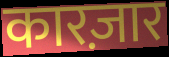
कारज़ार